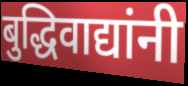
बुद्धिवाद्यांनी